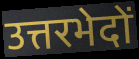
उत्तरभेदों